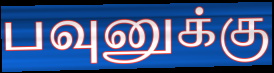
பவுனுக்கு